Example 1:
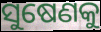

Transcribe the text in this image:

ସୁଷେଣକୁ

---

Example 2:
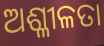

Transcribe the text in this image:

ଅଶ୍ଳୀଳତା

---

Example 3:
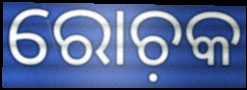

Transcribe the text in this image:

ରୋଚ଼କ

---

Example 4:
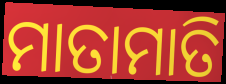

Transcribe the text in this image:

ମାତାମାତି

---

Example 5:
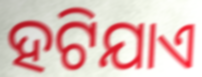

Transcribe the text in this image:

ହଟିଯାଏ